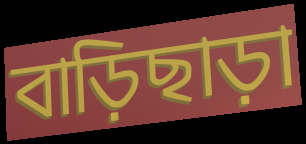
বাড়িছাড়া